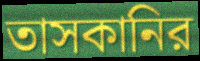
তাসকানির